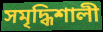
সমৃদ্ধিশালী